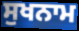
ਸੁਖਨਾਮ